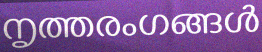
നൃത്തരംഗങ്ങൾ